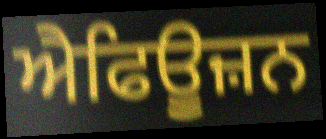
ਐਫਿਊਜ਼ਨ